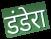
डंडेरा